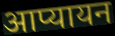
आप्यायन